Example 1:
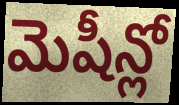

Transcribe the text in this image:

మెషీన్లో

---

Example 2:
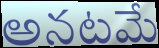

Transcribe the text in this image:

అనటమే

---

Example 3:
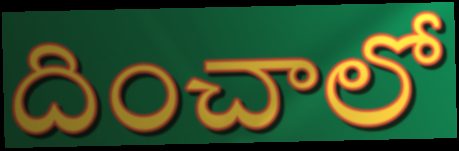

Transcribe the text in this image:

దించాలో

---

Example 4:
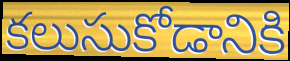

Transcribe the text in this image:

కలుసుకోడానికి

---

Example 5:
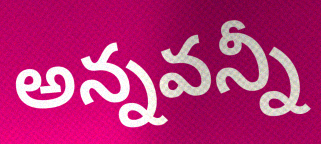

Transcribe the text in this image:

అన్నవన్నీ